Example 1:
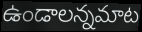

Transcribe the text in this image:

ఉండాలన్నమాట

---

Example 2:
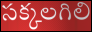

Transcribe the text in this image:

సక్కలగిలి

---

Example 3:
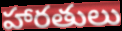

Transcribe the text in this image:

హారతులు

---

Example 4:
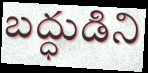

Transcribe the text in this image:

బద్ధుడిని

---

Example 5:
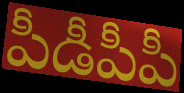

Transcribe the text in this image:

పీడీపీపీ